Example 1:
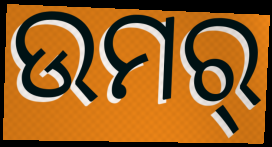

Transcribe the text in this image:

ଉମର୍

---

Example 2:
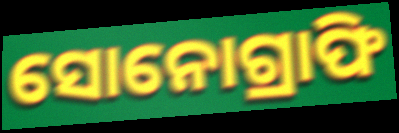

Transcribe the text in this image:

ସୋନୋଗ୍ରାଫି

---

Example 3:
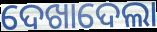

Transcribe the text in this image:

ଦେଖାଦେଲା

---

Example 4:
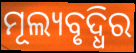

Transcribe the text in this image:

ମୂଲ୍ୟବୃଦ୍ଧିର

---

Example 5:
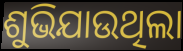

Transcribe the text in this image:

ଶୁଭିଯାଉଥିଲା